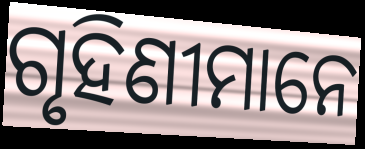
ଗୃହିଣୀମାନେ